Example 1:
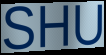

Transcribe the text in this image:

SHU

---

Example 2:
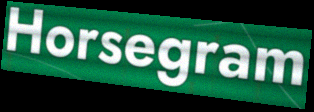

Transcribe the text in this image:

Horsegram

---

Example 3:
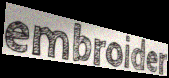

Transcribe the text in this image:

embroider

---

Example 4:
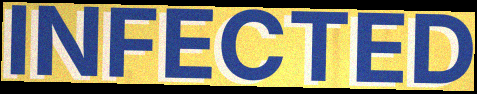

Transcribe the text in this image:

INFECTED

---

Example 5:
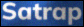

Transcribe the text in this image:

Satrap